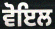
ਵੋਇਲ